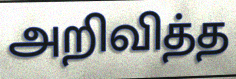
அறிவித்த